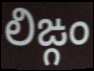
లిఙ్గం